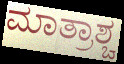
ಮಾತ್ರಾಶ್ಚ